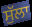
ਸੁੱਲਾ